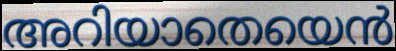
അറിയാതെയെൻ